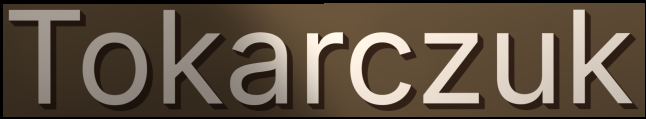
Tokarczuk